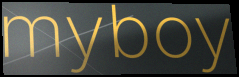
myboy